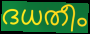
ദധതീം